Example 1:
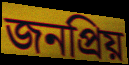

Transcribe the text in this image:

জনপ্ৰিয়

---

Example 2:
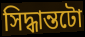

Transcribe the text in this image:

সিদ্ধান্তটো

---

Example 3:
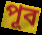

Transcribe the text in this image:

পূব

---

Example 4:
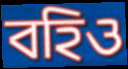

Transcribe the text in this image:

বহিও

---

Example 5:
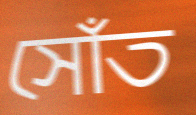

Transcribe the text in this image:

সোঁত